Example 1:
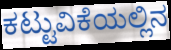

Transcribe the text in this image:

ಕಟ್ಟುವಿಕೆಯಲ್ಲಿನ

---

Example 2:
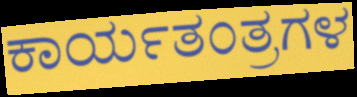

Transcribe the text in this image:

ಕಾರ್ಯತಂತ್ರಗಳ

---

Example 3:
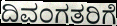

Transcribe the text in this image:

ದಿವಂಗತರಿಗೆ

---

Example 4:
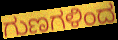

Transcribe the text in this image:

ಗುಣಗಳಿಂದ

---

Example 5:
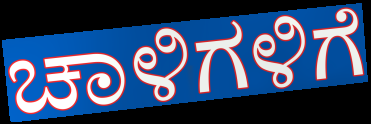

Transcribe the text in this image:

ಚಾಳಿಗಳಿಗೆ